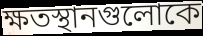
ক্ষতস্থানগুলোকে